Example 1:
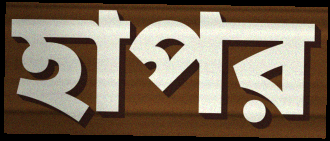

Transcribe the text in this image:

হাপর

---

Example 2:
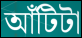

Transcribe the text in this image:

আঁটিটা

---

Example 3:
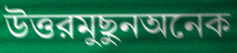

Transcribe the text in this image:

উত্তরমুছুনঅনেক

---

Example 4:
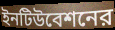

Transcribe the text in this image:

ইনটিউবেশনের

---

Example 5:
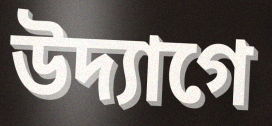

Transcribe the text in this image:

উদ্যাগে